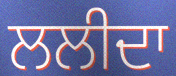
ਲਲੀਦਾ